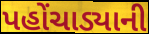
પહોંચાડ્યાની